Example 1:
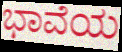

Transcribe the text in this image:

ಭಾವೆಯ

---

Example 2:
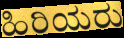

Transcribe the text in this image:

ಹಿರಿಯರು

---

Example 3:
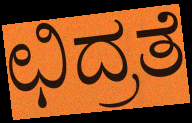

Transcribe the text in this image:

ಛಿದ್ರತೆ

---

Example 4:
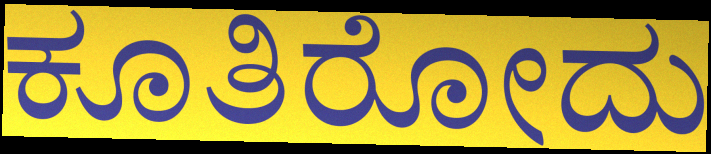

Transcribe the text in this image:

ಕೂತಿರೋದು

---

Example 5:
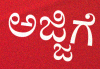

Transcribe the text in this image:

ಅಜ್ಜಿಗೆ